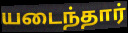
யடைந்தார்